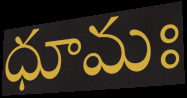
ధూమః